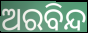
ଅରବିନ୍ଦ